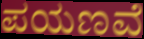
ಪಯಣವೆ